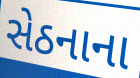
સેઠનાના